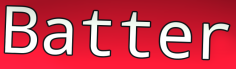
Batter